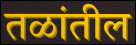
तळांतील